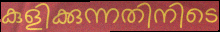
കുളിക്കുന്നതിനിടെ